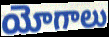
యోగాలు